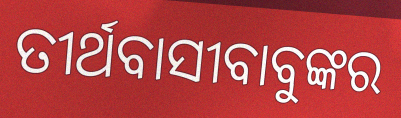
ତୀର୍ଥବାସୀବାବୁଙ୍କର